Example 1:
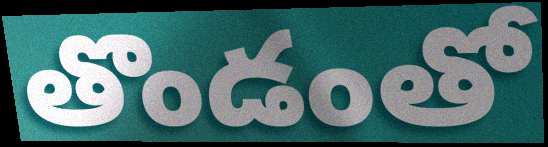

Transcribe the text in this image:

తొండంతో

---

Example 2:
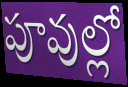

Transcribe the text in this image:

పూవుల్లో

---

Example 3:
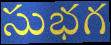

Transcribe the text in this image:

సుభగ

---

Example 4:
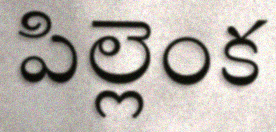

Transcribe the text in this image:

పిల్లెంక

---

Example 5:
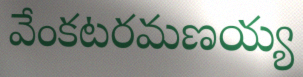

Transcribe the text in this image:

వేంకటరమణయ్య